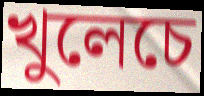
খুলেচে